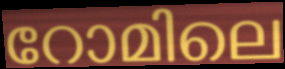
റോമിലെ